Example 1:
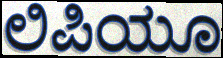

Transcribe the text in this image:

ಲಿಪಿಯೂ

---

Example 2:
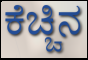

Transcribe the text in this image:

ಕೆಚ್ಚಿನ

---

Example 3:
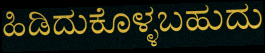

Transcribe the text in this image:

ಹಿಡಿದುಕೊಳ್ಳಬಹುದು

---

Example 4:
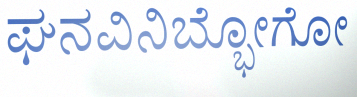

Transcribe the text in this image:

ಘನವಿನಿಬ್ಭೋಗೋ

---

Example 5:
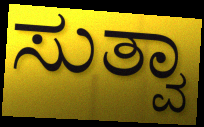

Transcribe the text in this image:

ಸುತ್ವಾ